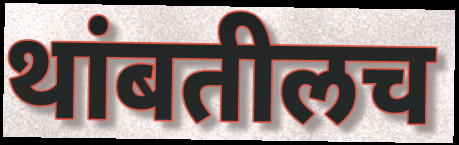
थांबतीलच